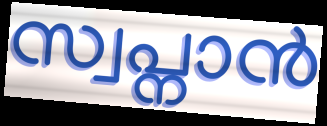
സ്വപ്നാൻ